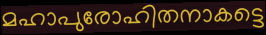
മഹാപുരോഹിതനാകട്ടെ